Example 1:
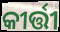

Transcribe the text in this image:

କୀର୍ତ୍ତୀ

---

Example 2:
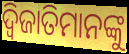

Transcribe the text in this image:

ଦ୍ୱିଜାତିମାନଙ୍କୁ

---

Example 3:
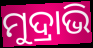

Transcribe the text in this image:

ମୁଦ୍ରାଭି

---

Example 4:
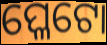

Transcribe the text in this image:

ପ୍ଳେଟୋ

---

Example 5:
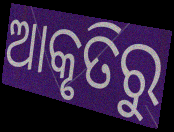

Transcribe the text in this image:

ଆକୃତିରୁ